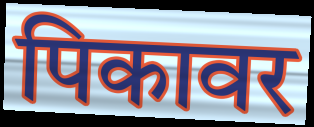
पिकावर